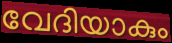
വേദിയാകും